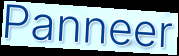
Panneer